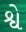
શ્વે